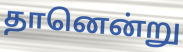
தானென்று